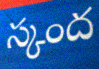
స్కంద